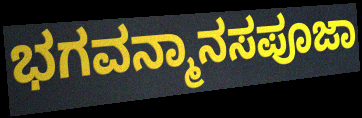
ಭಗವನ್ಮಾನಸಪೂಜಾ